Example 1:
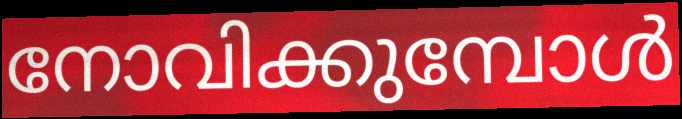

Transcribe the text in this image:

നോവിക്കുമ്പോൾ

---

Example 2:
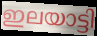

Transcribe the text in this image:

ഇലയാട്ടി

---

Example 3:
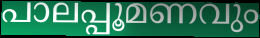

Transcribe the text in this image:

പാലപ്പൂമണവും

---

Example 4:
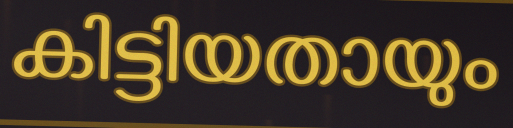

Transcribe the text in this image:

കിട്ടിയതായും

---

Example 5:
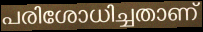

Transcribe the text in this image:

പരിശോധിച്ചതാണ്